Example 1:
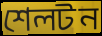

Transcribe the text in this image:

শেলটন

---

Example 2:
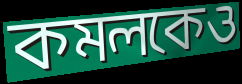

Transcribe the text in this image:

কমলকেও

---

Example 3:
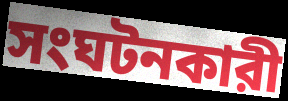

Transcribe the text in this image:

সংঘটনকারী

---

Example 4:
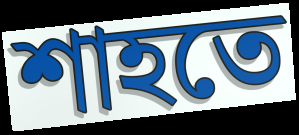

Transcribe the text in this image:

শাহতে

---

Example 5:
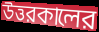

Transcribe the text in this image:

উত্তরকালের